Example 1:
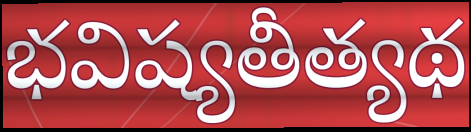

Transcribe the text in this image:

భవిష్యతీత్యథ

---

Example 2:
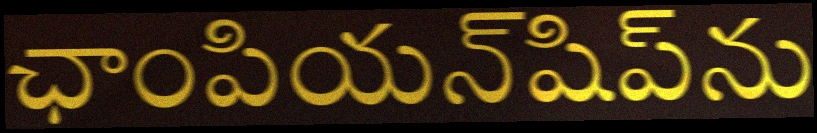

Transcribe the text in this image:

ఛాంపియన్‌షిప్‌ను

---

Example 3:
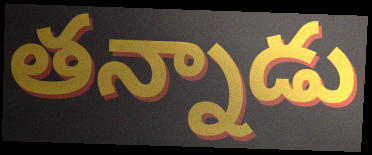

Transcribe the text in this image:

తన్నాడు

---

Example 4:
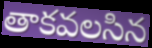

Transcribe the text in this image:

తాకవలసిన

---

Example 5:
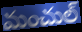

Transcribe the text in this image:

మంచుల్